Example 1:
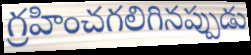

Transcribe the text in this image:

గ్రహించగలిగినప్పుడు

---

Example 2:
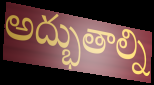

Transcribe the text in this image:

అద్భుతాల్ని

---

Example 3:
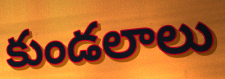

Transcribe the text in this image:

కుండలాలు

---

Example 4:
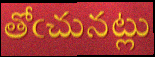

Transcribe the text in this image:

తోఁచునట్లు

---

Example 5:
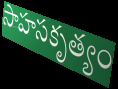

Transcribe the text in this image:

సాహసకృత్యం